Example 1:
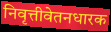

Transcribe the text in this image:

निवृत्तीवेतनधारक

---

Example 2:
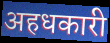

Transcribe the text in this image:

अहधकारी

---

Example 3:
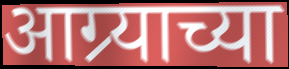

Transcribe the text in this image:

आग्र्याच्या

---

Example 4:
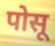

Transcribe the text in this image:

पोसू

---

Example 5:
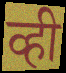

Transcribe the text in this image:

व्ही